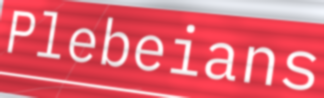
Plebeians